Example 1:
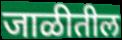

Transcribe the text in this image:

जाळीतील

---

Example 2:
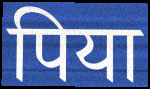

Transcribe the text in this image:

पिया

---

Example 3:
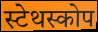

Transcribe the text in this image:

स्टेथस्कोप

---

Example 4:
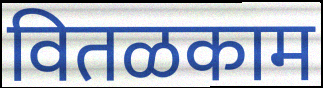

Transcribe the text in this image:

वितळकाम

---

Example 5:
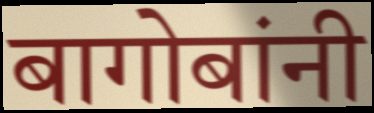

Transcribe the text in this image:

बागोबांनी